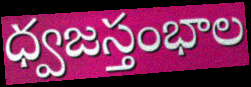
ధ్వజస్తంభాల